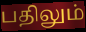
பதிலும்